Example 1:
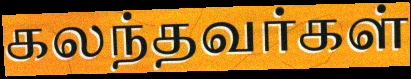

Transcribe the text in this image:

கலந்தவர்கள்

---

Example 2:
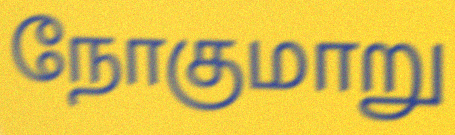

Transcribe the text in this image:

நோகுமாறு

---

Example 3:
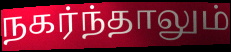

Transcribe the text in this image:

நகர்ந்தாலும்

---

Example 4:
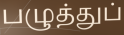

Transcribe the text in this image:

பழுத்துப்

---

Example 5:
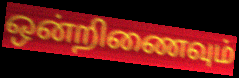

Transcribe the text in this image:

ஒன்றிணைவும்